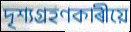
দৃশ্যগ্ৰহণকাৰীয়ে